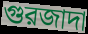
গুরজাদা